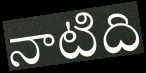
నాటిది